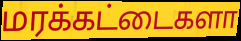
மரக்கட்டைகளா